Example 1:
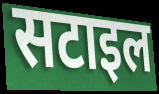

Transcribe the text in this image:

सटाइल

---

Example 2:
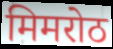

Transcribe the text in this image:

मिमरोठ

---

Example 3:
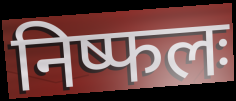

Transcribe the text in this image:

निष्फलः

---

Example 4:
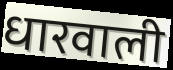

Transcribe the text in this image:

धारवाली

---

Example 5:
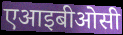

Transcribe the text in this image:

एआइबीओसी